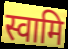
स्वामि